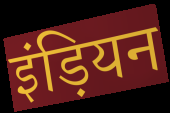
इंड़ियन